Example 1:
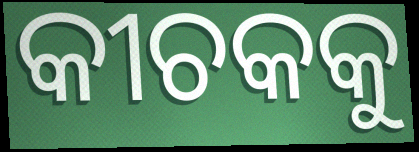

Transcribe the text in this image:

କୀଚକକୁ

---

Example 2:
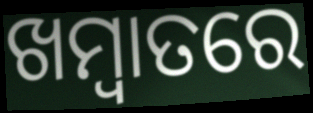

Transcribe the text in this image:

ଖମ୍ବାତରେ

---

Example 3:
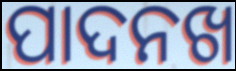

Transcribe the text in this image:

ପାଦନଖ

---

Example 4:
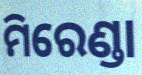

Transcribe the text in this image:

ମିରେଣ୍ଡା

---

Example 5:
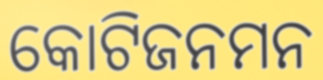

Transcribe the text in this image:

କୋଟିଜନମନ